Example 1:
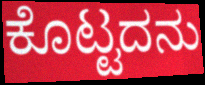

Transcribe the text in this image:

ಕೊಟ್ಟದನು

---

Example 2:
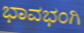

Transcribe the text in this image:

ಭಾವಭಂಗಿ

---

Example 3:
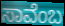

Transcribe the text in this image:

ಸಾವೆಂಬ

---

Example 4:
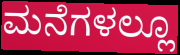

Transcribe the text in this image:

ಮನೆಗಳಲ್ಲೂ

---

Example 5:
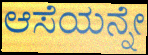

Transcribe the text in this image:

ಆಸೆಯನ್ನೇ